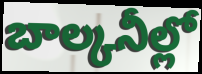
బాల్కనీల్లో